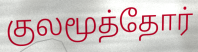
குலமூத்தோர்